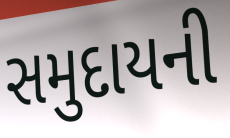
સમુદાયની